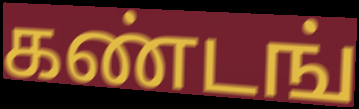
கண்டங்